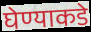
घेण्याकडे